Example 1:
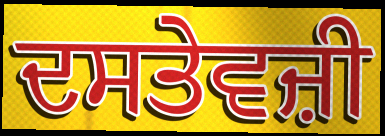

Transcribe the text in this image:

ਦਸਤੇਵਜ਼ੀ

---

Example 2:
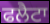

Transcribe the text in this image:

ਫਲੈਟਾ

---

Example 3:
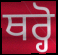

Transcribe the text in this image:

ਥਰ੍ਹੋ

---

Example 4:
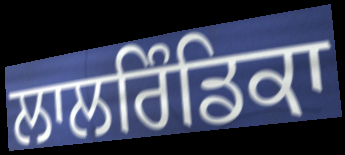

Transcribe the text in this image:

ਲਾਲਰਿੰਡਿਕਾ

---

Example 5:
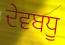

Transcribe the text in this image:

ਦੇਵਬਧੂ